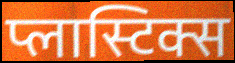
प्लास्टिक्स